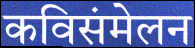
कविसंमेलन